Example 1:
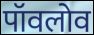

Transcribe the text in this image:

पॉवलोव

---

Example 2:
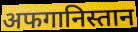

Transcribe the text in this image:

अफगानिस्तान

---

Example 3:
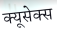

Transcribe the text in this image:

क्यूसेक्स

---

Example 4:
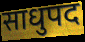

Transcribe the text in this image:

साधुपद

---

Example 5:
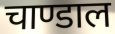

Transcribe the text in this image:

चाण्डाल